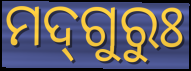
ମଦ୍‌ଗୁରୁଃ